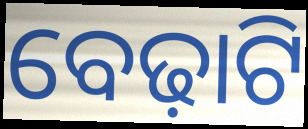
ବେଢ଼ାଟି